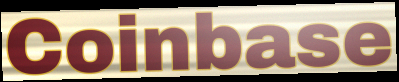
Coinbase